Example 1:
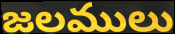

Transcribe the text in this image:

జలములు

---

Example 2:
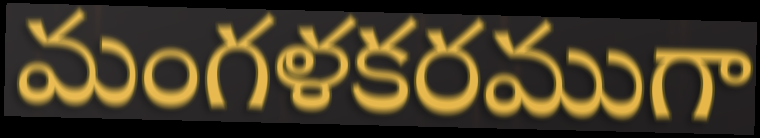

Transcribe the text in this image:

మంగళకరముగా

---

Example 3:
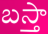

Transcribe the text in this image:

బస్తా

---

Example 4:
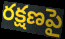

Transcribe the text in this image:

రక్షణపై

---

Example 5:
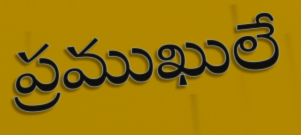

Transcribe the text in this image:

ప్రముఖులే